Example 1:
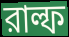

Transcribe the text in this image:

রাল্ফ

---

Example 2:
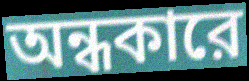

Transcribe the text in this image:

অন্ধকারে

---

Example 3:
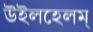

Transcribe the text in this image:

উইলহেলম্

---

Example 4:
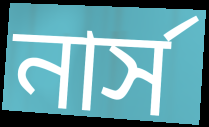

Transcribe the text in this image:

নার্স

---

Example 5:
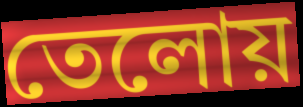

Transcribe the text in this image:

তেলোয়